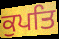
ਕੁਪਤਿ